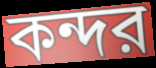
কন্দর